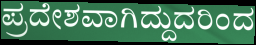
ಪ್ರದೇಶವಾಗಿದ್ದುದರಿಂದ